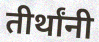
तीर्थांनी